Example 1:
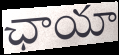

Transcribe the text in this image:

ఛాయా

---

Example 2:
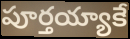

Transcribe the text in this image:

పూర్తయ్యాకే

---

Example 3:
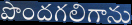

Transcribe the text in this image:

పొందగలిగాను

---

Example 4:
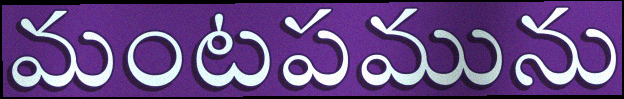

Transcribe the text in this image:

మంటపమును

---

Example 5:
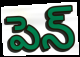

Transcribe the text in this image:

పెన్